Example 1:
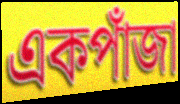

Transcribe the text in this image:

একপাঁজা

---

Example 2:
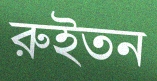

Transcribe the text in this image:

রুইতন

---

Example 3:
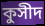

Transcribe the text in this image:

কুসীদ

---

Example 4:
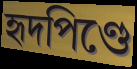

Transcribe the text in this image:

হৃদপিণ্ডে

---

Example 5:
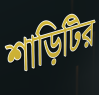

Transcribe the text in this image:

শাড়িটির